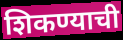
शिकण्याची